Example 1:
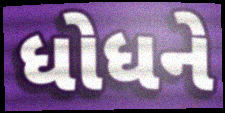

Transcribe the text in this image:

ધોધને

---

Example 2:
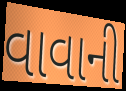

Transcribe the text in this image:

વાવાની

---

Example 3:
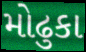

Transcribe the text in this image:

મોઢુકા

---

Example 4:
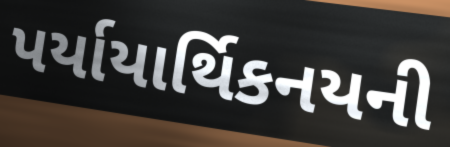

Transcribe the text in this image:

પર્યાયાર્થિકનયની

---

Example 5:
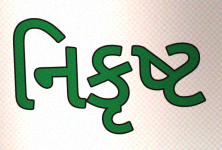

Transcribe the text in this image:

નિકૃષ્ટ